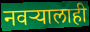
नवऱ्यालाही